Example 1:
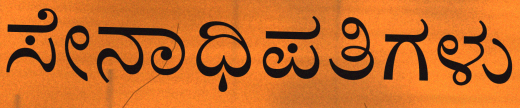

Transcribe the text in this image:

ಸೇನಾಧಿಪತಿಗಳು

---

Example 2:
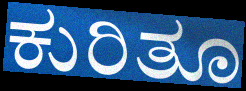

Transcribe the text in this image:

ಕುರಿತೂ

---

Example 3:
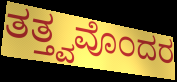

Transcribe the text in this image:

ತತ್ತ್ವವೊಂದರ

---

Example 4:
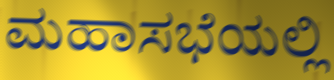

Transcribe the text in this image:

ಮಹಾಸಭೆಯಲ್ಲಿ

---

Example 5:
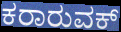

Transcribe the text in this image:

ಕರಾರುವಕ್